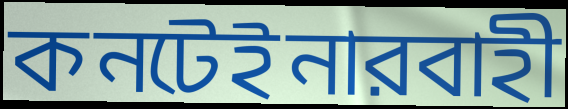
কনটেইনারবাহী